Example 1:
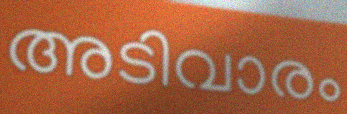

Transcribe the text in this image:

അടിവാരം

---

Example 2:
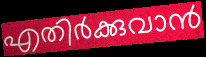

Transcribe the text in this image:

എതിർക്കുവാൻ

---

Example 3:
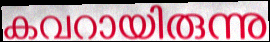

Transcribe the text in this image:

കവറായിരുന്നു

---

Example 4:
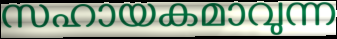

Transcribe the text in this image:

സഹായകമാവുന്ന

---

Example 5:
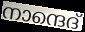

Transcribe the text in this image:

നാന്ദെദ്